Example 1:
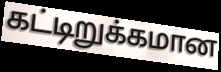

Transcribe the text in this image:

கட்டிறுக்கமான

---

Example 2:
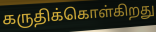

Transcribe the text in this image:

கருதிக்கொள்கிறது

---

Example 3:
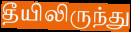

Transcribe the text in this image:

தீயிலிருந்து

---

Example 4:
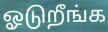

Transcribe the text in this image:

ஓடுறீங்க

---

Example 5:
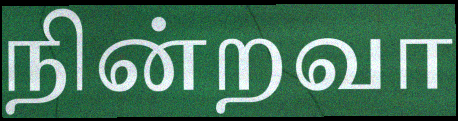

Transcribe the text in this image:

நின்றவா